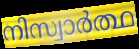
നിസ്വാർത്ഥ